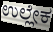
ಉಲ್ಲೇಕ